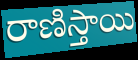
రాణిస్తాయి